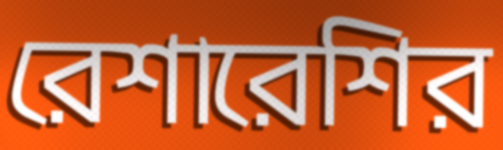
রেশারেশির